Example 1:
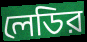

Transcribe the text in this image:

লেডির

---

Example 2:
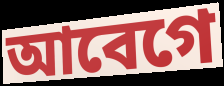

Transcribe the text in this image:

আবেগে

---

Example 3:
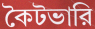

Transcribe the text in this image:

কৈটভারি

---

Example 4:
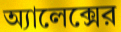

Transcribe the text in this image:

অ্যালেক্সের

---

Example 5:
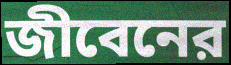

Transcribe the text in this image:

জীবেনের